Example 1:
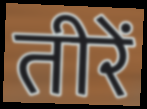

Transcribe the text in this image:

तीरें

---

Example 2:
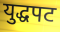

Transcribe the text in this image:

युद्धपट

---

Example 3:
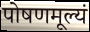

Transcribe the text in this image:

पोषणमूल्यं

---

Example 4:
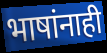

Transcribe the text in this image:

भाषांनाही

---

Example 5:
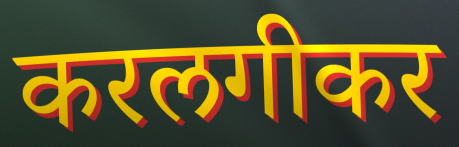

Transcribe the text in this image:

करलगीकर